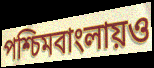
পশ্চিমবাংলায়ও